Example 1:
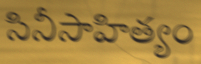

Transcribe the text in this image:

సినీసాహిత్యం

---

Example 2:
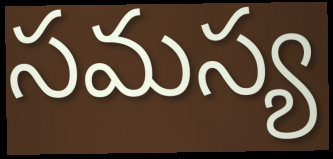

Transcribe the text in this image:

సమస్య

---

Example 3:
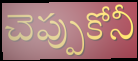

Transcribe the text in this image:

చెప్పుకోనీ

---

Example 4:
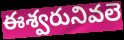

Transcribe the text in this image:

ఈశ్వరునివలె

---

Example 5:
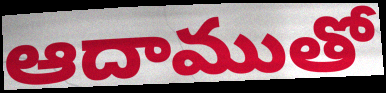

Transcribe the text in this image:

ఆదాముతో